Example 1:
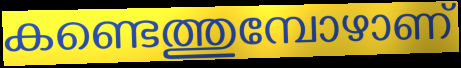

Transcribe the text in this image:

കണ്ടെത്തുമ്പോഴാണ്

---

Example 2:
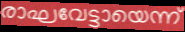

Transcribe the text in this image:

രാഘവേട്ടായെന്ന്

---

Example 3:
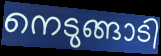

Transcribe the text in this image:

നെടുങ്ങാടി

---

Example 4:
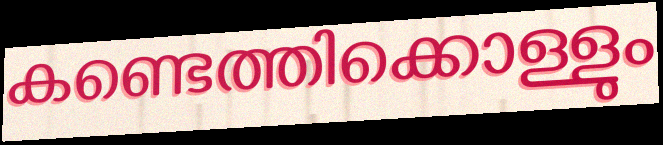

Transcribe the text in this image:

കണ്ടെത്തിക്കൊള്ളും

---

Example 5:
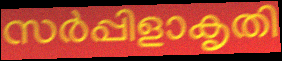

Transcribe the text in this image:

സർപ്പിളാകൃതി